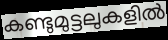
കണ്ടുമുട്ടലുകളിൽ